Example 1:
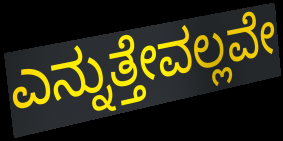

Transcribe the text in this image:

ಎನ್ನುತ್ತೇವಲ್ಲವೇ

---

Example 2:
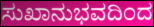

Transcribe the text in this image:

ಸುಖಾನುಭವದಿಂದ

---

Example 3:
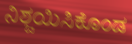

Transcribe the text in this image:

ನಿಶ್ಚಯಿಸಿಕೊಂಡ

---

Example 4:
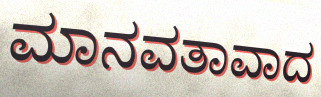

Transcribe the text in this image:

ಮಾನವತಾವಾದ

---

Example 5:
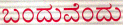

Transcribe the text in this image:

ಬಂದುವೆಂದು